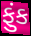
ફુંક